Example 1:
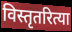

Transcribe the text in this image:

विस्तृतरित्या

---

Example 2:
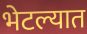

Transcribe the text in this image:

भेटल्यात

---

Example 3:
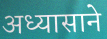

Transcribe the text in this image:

अध्यासाने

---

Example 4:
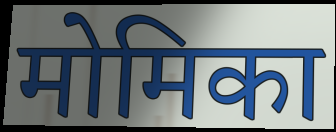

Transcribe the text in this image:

मोमिका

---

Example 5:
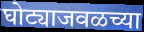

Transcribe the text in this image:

घोट्याजवळच्या